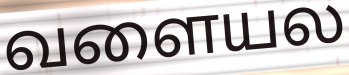
வளையல